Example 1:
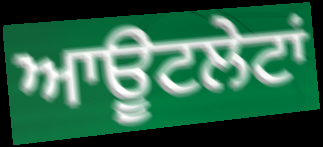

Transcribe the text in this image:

ਆਊਟਲੇਟਾਂ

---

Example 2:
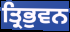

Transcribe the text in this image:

ਤ੍ਰਿਭੁਵਨ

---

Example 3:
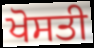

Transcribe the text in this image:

ਖੋਸਤੀ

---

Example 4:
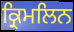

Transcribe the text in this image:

ਕ੍ਰਿਮਲਿਨ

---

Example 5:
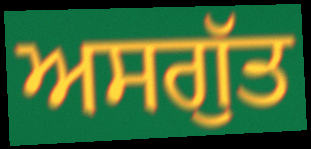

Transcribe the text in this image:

ਅਸਗੁੱਤ